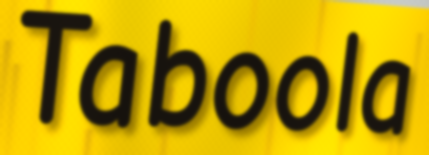
Taboola